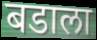
बडाला